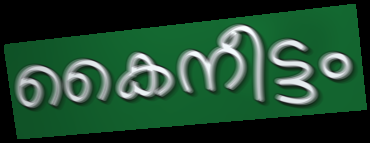
കൈനീട്ടം